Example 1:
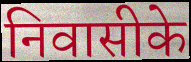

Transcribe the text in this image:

निवासीके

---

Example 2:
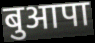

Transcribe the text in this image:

बुआपा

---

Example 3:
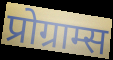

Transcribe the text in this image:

प्रोग्राम्स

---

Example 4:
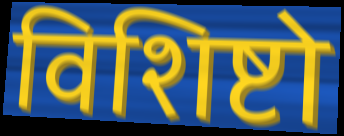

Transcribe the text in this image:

विशिष्टो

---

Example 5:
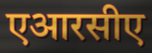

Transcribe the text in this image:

एआरसीए